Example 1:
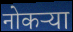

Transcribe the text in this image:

नोकऱ्या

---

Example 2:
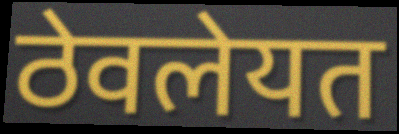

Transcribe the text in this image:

ठेवलेयत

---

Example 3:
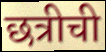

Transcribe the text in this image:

छत्रीची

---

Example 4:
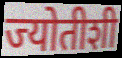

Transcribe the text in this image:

ज्योतीशी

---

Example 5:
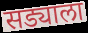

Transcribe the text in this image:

सड्याला